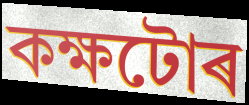
কক্ষটোৰ